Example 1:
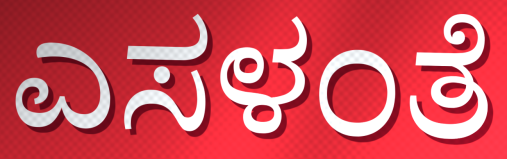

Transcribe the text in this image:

ಎಸಳಂತೆ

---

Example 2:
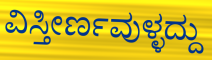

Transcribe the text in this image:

ವಿಸ್ತೀರ್ಣವುಳ್ಳದ್ದು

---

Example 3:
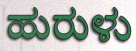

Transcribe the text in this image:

ಹುರುಳು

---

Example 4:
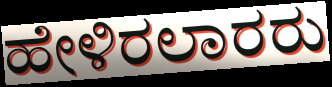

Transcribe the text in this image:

ಹೇಳಿರಲಾರರು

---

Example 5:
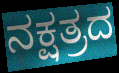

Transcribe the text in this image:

ನಕ್ಷತ್ರದ